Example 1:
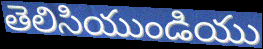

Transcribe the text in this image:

తెలిసియుండియు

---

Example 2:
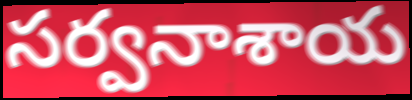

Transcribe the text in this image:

సర్వనాశాయ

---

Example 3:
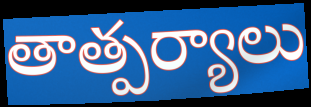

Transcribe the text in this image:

తాత్పర్యాలు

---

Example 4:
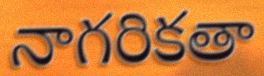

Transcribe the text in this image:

నాగరికతా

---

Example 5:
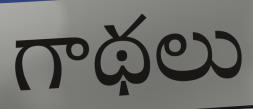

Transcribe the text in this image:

గాథలు